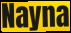
Nayna